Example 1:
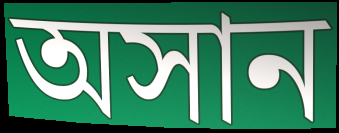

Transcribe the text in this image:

অসান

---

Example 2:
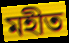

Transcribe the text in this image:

মহীত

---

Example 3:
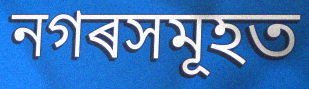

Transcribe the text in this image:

নগৰসমূহত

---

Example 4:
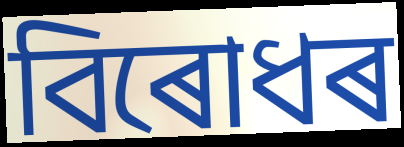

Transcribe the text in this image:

বিৰোধৰ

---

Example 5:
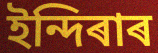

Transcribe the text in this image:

ইন্দিৰাৰ